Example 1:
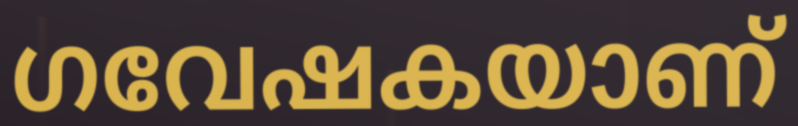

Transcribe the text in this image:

ഗവേഷകയാണ്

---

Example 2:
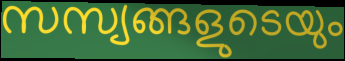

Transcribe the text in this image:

സസ്യങ്ങളുടെയും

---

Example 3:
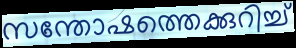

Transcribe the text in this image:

സന്തോഷത്തെക്കുറിച്ച്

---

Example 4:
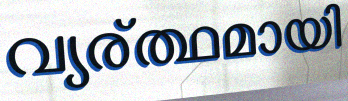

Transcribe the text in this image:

വ്യര്ത്ഥമായി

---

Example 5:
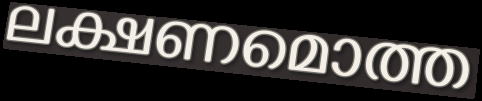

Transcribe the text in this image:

ലക്ഷണമൊത്ത